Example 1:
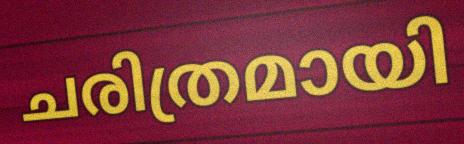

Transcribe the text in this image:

ചരിത്രമായി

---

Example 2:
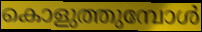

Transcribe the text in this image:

കൊളുത്തുമ്പോൾ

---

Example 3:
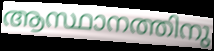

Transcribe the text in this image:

ആസ്ഥാനത്തിനു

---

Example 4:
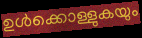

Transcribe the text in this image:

ഉൾക്കൊള്ളുകയും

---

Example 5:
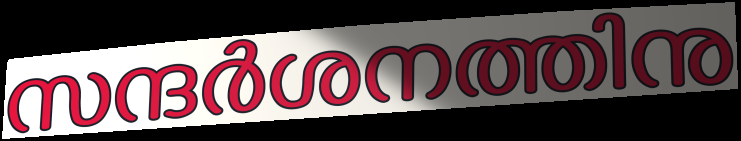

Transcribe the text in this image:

സന്ദർശനത്തിനു